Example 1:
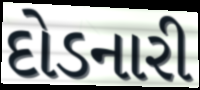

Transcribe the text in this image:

દોડનારી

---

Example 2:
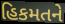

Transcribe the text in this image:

હિકમતને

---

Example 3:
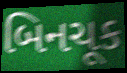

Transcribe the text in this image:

બિનચૂક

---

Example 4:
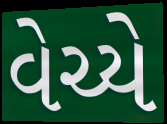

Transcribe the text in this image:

વેચ્યે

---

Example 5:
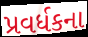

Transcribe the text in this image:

પ્રવર્ધકના